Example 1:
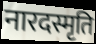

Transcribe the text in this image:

नारदस्मृति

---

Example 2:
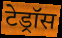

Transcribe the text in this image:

टेड्रॉस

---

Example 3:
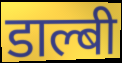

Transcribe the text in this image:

डाल्बी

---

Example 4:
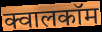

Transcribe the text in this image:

क्‍वालकॉम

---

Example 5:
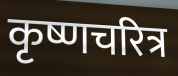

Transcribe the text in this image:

कृष्णचरित्र